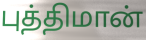
புத்திமான்